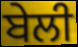
ਬੇਲੀ